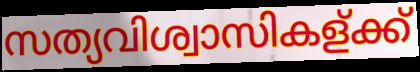
സത്യവിശ്വാസികള്ക്ക്